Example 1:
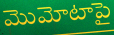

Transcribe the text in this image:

మొమోటాపై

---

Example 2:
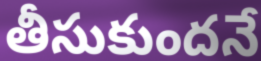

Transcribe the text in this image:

తీసుకుందనే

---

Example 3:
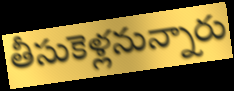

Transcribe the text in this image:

తీసుకెళ్లనున్నారు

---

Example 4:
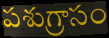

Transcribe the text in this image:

పశుగ్రాసం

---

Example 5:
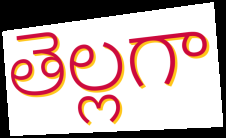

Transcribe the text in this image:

తెల్లగా